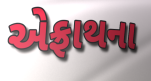
એફ્રાથના